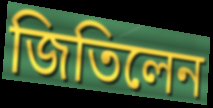
জিতিলেন